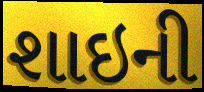
શાઇની